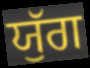
ਯੁੱਗ